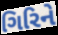
ગિરિને